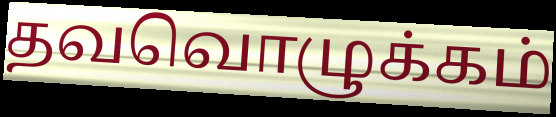
தவவொழுக்கம்